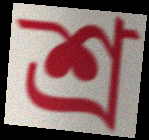
শ্র